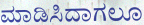
ಮಾಡಿಸಿದಾಗಲೂ